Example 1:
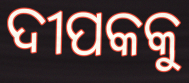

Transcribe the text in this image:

ଦୀପକକୁ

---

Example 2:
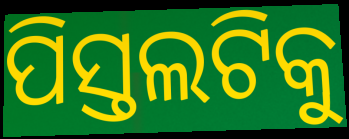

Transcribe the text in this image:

ପିସ୍ତଲଟିକୁ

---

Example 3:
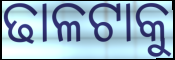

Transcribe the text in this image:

ଢାଳଟାକୁ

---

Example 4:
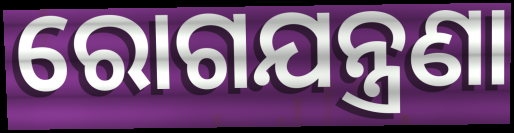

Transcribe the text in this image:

ରୋଗଯନ୍ତ୍ରଣା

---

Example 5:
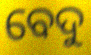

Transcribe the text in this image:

ବେଦୁ